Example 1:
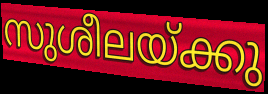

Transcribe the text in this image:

സുശീലയ്ക്കു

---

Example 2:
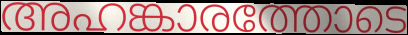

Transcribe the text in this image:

അഹങ്കാരത്തോടെ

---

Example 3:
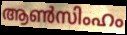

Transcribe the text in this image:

ആൺസിംഹം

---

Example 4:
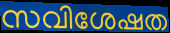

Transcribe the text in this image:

സവിശേഷത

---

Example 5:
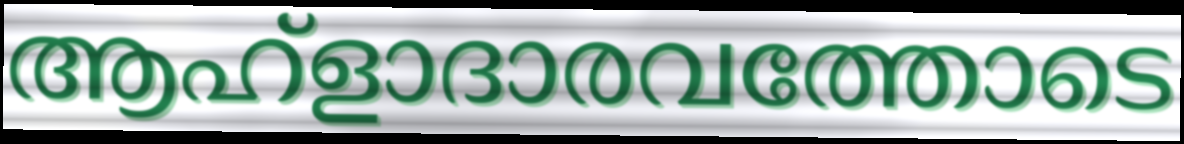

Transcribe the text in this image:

ആഹ്ളാദാരവത്തോടെ